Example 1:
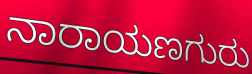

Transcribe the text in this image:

ನಾರಾಯಣಗುರು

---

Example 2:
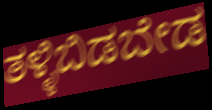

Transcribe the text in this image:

ತಳ್ಳಿಬಿಡಬೇಡ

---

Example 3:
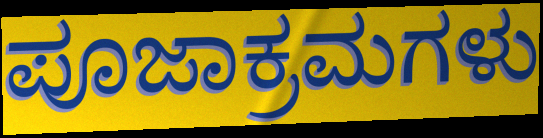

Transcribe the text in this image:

ಪೂಜಾಕ್ರಮಗಳು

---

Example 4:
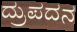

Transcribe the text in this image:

ದ್ರುಪದನ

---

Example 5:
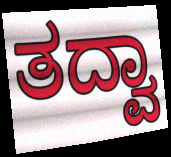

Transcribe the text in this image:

ತದ್ವಾ